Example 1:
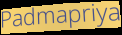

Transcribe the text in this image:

Padmapriya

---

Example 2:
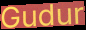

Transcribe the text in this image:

Gudur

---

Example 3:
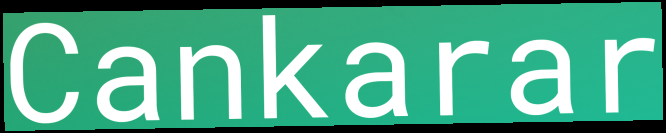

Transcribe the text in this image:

Cankarar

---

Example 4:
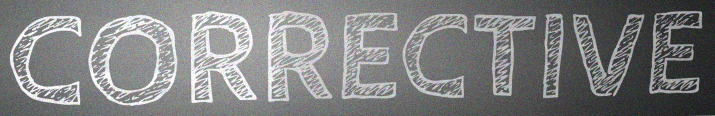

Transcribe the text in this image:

CORRECTIVE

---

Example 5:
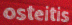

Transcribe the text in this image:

osteitis